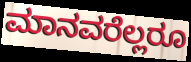
ಮಾನವರೆಲ್ಲರೂ